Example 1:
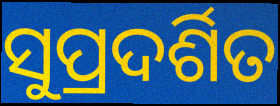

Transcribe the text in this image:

ସୁପ୍ରଦର୍ଶିତ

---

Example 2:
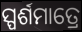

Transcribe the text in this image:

ସ୍ପର୍ଶମାତ୍ରେ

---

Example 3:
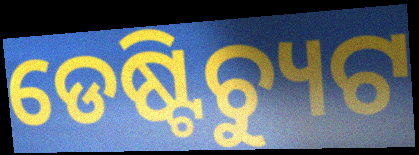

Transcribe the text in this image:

ଡେଷ୍ଟିଚ୍ୟୁଟ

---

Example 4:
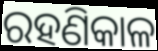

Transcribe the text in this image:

ରହଣିକାଳ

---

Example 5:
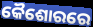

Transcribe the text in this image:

କୈଶୋରରେ